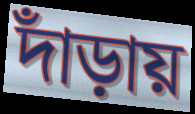
দাঁড়ায়